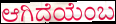
ಆಗಿದೆಯೆಂಬ